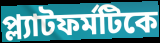
প্ল্যাটফর্মটিকে